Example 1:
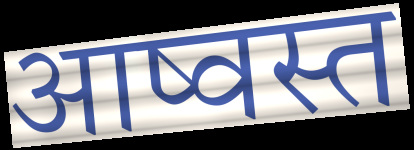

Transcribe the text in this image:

आष्वस्त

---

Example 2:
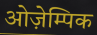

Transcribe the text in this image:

ओज़ेम्पिक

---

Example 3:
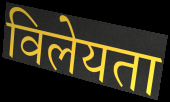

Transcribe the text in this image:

विलेयता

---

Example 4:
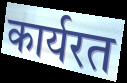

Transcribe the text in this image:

कार्यरत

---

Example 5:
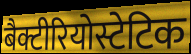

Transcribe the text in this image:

बैक्टीरियोस्टेटिक